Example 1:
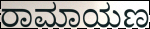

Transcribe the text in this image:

ರಾಮಾಯಣ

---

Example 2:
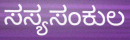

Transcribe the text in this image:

ಸಸ್ಯಸಂಕುಲ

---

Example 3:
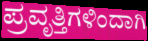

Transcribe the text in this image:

ಪ್ರವೃತ್ತಿಗಳಿಂದಾಗಿ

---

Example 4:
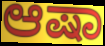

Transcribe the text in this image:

ಆಷಾ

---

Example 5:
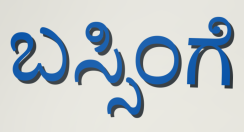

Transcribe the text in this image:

ಬಸ್ಸಿಂಗೆ